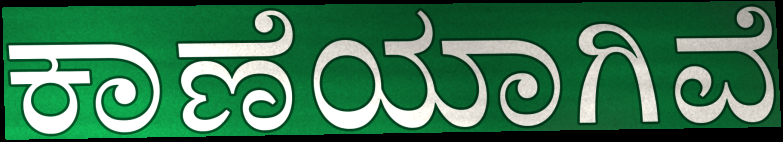
ಕಾಣೆಯಾಗಿವೆ